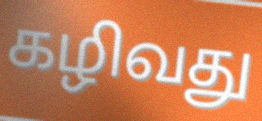
கழிவது